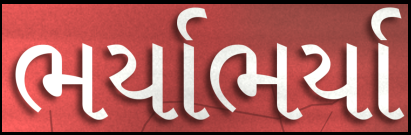
ભર્યાભર્યા